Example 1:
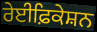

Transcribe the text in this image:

ਰੇਈਫ਼ਿਕੇਸ਼ਨ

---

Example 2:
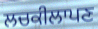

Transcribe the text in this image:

ਲਚਕੀਲਾਪਣ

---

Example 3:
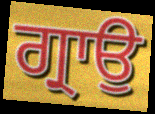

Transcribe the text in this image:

ਗ੍ਰਾਉ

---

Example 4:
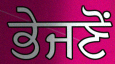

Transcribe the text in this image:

ਭੇਜਣੋਂ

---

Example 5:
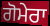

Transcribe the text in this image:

ਗੋਮੇਰਾ